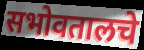
सभोवतालचे